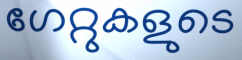
ഗേറ്റുകളുടെ